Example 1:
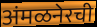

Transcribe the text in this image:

अंमळनेरची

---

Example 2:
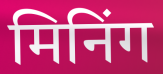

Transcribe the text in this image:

मिनिंग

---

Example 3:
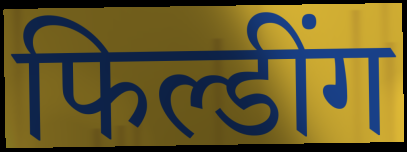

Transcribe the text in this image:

फिल्डींग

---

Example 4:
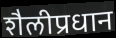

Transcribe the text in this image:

शैलीप्रधान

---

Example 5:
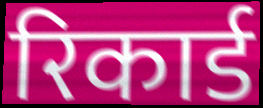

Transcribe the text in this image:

रिकार्ड